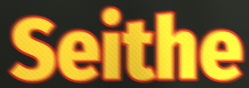
Seithe